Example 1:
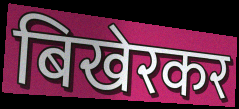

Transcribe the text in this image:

बिखेरकर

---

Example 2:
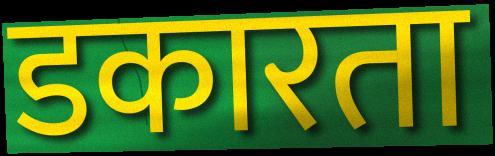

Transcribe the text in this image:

डकारता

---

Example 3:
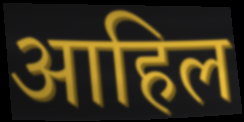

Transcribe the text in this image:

आहिल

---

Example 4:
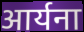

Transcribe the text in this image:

आर्यना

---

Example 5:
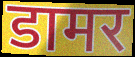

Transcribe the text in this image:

डामर